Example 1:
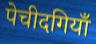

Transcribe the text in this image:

पेचीदगियाँ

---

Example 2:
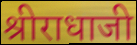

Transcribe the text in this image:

श्रीराधाजी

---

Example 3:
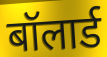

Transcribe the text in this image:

बॉलार्ड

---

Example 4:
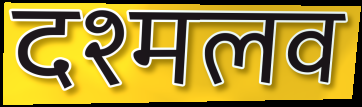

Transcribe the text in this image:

दश्मलव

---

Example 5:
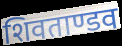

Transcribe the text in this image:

शिवताण्डव